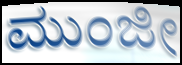
ಮುಂಜೀ